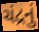
ચંદ્રનું